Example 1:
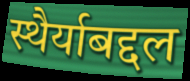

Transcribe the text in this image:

स्थैर्याबद्दल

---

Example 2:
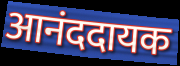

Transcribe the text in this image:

आनंददायक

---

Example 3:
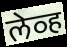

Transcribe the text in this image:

लेव्ह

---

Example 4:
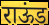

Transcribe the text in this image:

राऊंड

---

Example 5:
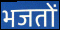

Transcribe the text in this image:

भजतों